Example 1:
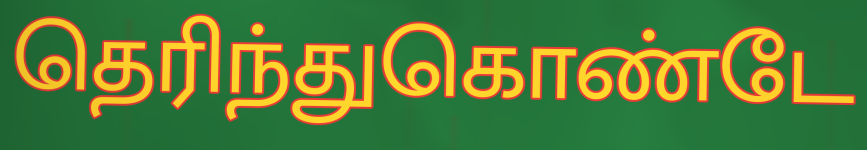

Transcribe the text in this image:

தெரிந்துகொண்டே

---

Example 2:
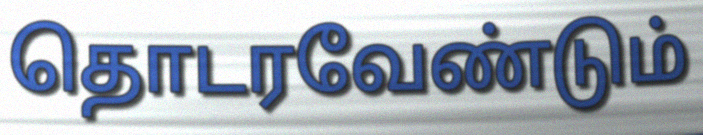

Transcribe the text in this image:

தொடரவேண்டும்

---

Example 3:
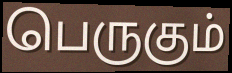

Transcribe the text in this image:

பெருகும்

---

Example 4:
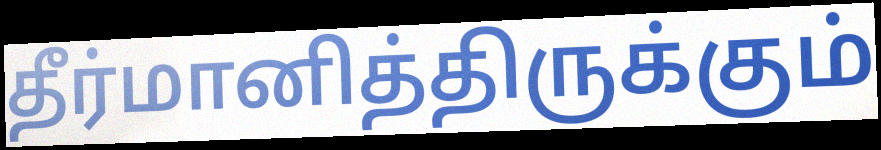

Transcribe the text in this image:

தீர்மானித்திருக்கும்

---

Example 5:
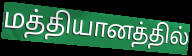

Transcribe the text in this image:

மத்தியானத்தில்